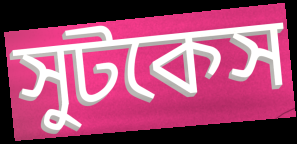
সুটকেস